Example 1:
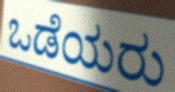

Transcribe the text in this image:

ಒಡೆಯರು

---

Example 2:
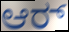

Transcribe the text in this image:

ಆರ್‍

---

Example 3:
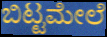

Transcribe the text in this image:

ಬಿಟ್ಟಮೇಲೆ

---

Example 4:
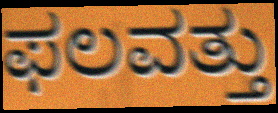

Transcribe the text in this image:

ಫಲವತ್ತು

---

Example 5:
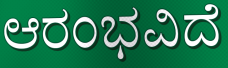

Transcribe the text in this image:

ಆರಂಭವಿದೆ